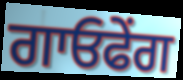
ਗਾਓਫੇਂਗ